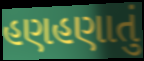
હણહણાતું